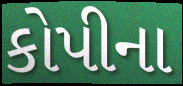
કોપીના